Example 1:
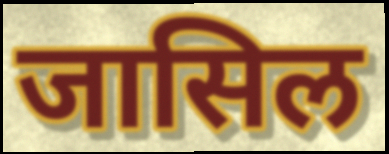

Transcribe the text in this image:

जासिल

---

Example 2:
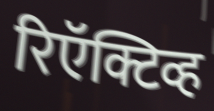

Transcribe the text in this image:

रिऍक्टिव्ह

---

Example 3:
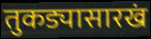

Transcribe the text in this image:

तुकड्यासारखं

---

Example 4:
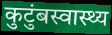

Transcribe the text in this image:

कुटुंबस्वास्थ्य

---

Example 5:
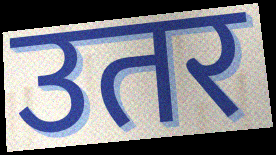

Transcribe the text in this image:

उतर